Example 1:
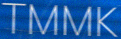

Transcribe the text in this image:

TMMK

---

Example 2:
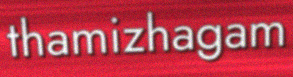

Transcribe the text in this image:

thamizhagam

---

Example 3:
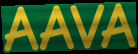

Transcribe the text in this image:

AAVA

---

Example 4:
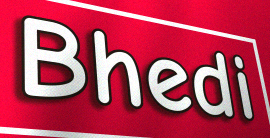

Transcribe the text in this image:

Bhedi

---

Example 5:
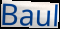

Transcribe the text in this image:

Baul